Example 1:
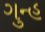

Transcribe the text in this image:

ગુન્હ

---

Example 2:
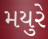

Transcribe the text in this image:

મયુરે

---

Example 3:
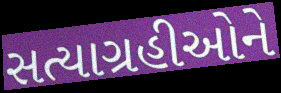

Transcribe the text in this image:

સત્યાગ્રહીઓને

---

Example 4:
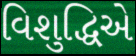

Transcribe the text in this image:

વિશુદ્ધિએ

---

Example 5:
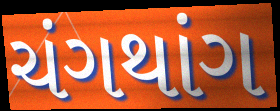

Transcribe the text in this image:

ચંગથાંગ